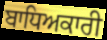
ਬਾਧਿਅਕਾਰੀ